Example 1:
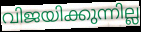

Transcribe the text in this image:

വിജയിക്കുന്നില്ല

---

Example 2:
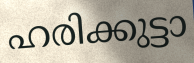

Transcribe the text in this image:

ഹരിക്കുട്ടാ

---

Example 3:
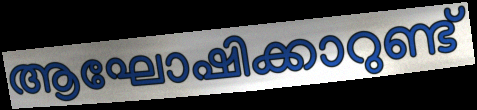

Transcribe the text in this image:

ആഘോഷിക്കാറുണ്ട്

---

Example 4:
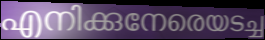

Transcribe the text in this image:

എനിക്കുനേരെയടച്ച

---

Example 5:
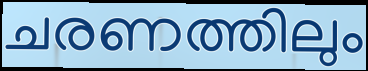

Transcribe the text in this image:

ചരണത്തിലും